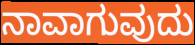
ನಾವಾಗುವುದು